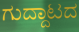
ಗುದ್ದಾಟದ